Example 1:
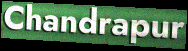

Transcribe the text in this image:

Chandrapur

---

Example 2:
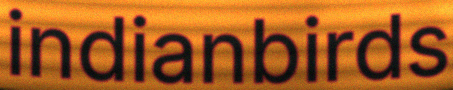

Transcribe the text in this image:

indianbirds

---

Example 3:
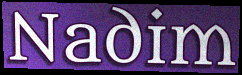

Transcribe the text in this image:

Nadim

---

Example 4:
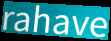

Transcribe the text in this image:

rahave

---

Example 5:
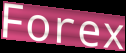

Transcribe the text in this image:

Forex